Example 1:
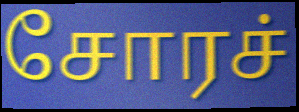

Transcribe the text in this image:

சோரச்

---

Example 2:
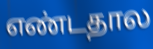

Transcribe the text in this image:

எண்டதால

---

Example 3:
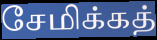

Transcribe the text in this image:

சேமிக்கத்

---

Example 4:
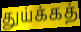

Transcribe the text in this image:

துய்க்கத்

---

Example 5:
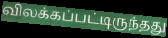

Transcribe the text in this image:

விலக்கப்பட்டிருந்தது